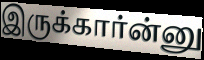
இருக்கார்ன்னு